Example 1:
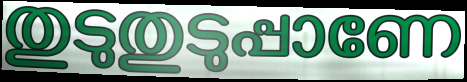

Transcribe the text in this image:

തുടുതുടുപ്പാണേ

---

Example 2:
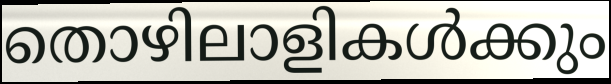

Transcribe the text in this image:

തൊഴിലാളികൾക്കും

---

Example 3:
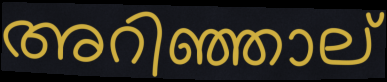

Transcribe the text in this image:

അറിഞ്ഞാല്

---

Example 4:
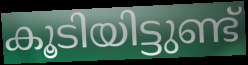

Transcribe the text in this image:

കൂടിയിട്ടുണ്ട്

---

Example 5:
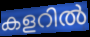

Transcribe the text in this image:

കളറിൽ